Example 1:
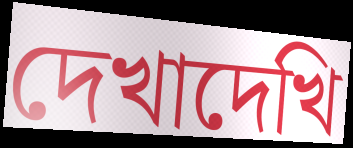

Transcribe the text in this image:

দেখাদেখি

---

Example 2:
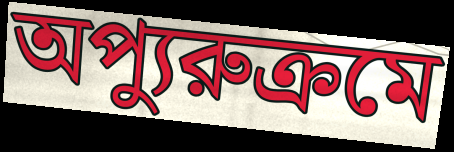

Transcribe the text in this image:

অপ্যুরুক্রমে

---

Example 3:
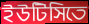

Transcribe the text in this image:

ইউটিসিতে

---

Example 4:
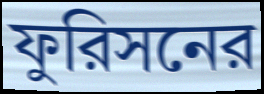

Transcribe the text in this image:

ফুরিসনের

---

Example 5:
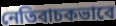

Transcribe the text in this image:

নেতিবাচকভাবে